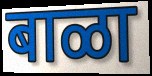
बाळा